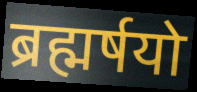
ब्रह्मर्षयो